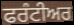
ਫਰੰਟੀਅਰ